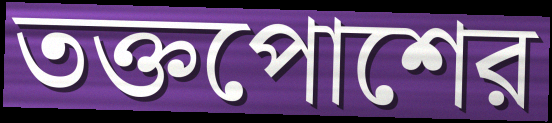
তক্তপোশের